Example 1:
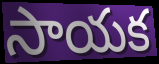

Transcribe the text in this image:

సాయక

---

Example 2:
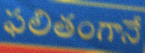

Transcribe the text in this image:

ఫలితంగానే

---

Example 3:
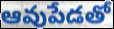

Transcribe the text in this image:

ఆవుపేడతో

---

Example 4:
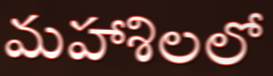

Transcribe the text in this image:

మహాశిలలో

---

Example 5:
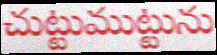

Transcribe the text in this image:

చుట్టుముట్టును